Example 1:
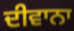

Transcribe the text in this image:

ਦੀਵਾਨਾ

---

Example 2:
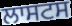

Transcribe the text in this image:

ਲਾਸਟਸ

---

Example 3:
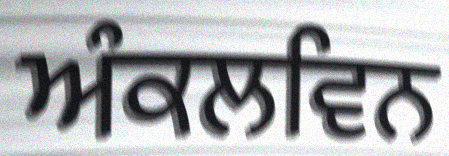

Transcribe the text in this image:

ਅੰਕਲਵਿਨ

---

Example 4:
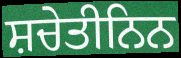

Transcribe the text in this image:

ਸ਼ਚੇਤੀਨਿਨ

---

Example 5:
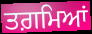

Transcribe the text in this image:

ਤਗ਼ਮਿਆਂ